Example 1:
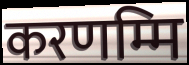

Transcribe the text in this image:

करणम्मि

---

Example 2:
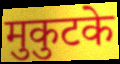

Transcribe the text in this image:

मुकुटके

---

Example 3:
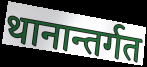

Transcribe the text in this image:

थानान्तर्गत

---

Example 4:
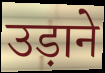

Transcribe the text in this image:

उड़ाने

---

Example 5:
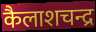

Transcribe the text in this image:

कैलाशचन्द्र